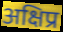
अक्षिप्र